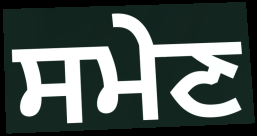
ਸਮੇਣ